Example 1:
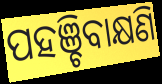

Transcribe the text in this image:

ପହଞ୍ଚିବାକ୍ଷଣି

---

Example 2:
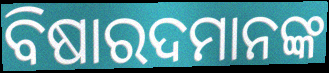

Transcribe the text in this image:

ବିଷାରଦମାନଙ୍କ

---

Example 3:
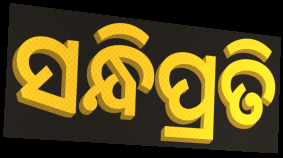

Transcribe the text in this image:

ସନ୍ଧିପ୍ରତି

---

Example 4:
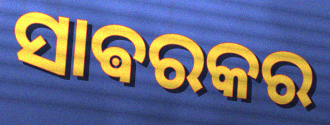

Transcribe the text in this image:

ସାଵରକର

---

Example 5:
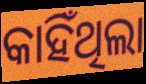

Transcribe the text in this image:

କାହିଁଥିଲା